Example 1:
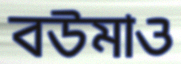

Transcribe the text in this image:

বউমাও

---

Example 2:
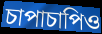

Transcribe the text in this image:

চাপাচাপিও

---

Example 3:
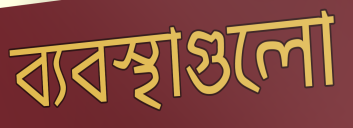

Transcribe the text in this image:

ব্যবস্থাগুলো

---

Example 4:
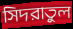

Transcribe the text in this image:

সিদরাতুল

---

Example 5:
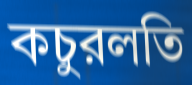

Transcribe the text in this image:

কচুরলতি